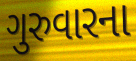
ગુરુવારના